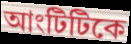
আংটিটিকে